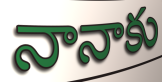
నానాకు